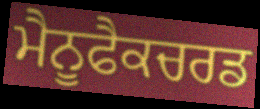
ਮੈਨੂਫੈਕਚਰਡ